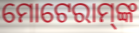
ମୋଟେରାମ୍‌ଙ୍କ